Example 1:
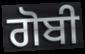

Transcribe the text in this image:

ਗੋਬੀ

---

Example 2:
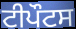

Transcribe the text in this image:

ਟੀਪੌਟਸ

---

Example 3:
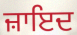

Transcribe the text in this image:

ਜ਼ਾਇਦ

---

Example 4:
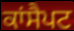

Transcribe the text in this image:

ਕਾਂਸੈਪਟ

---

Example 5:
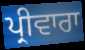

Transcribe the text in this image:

ਪ੍ਰੀਵਾਰਾ